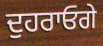
ਦੁਹਰਾਓਗੇ